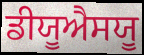
ਡੀਯੂਐਸਯੂ